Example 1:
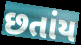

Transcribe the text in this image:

છતાંય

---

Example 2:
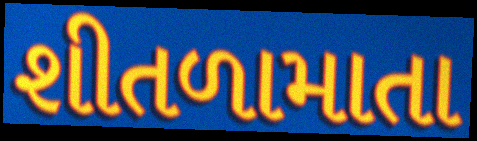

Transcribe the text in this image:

શીતળામાતા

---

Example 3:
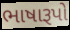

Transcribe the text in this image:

ભાષારૂપો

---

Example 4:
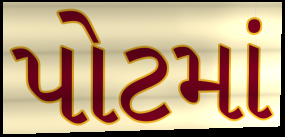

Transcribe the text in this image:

પોટમાં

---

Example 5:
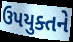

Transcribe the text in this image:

ઉપયુક્તને